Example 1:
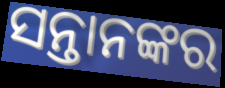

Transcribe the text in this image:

ସନ୍ତାନଙ୍କର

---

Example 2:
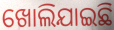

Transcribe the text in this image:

ଖୋଲିଯାଇଛି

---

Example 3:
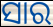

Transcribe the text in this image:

ସାର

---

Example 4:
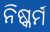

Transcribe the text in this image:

ନିଷ୍କର୍ମ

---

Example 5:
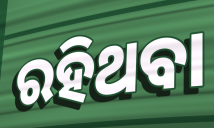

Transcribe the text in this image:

ରହିଥବା